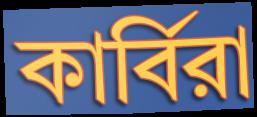
কার্বিরা